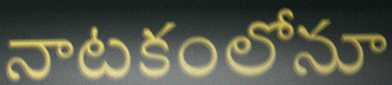
నాటకంలోనూ